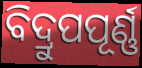
ବିଦ୍ରୁପପୂର୍ଣ୍ଣ